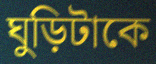
ঘুড়িটাকে